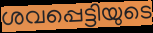
ശവപ്പെട്ടിയുടെ